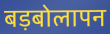
बड़बोलापन